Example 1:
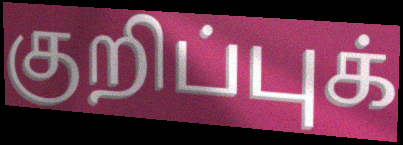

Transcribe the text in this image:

குறிப்புக்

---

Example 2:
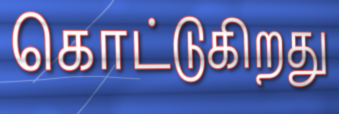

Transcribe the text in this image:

கொட்டுகிறது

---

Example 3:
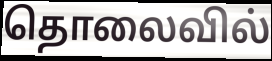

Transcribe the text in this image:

தொலைவில்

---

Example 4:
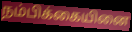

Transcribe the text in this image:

நம்பிக்கையினை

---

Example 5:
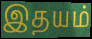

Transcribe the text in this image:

இதயம்